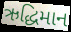
ઋદ્ધિમાન